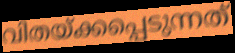
വിതയ്ക്കപ്പെടുന്നത്